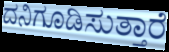
ದನಿಗೂಡಿಸುತ್ತಾರೆ